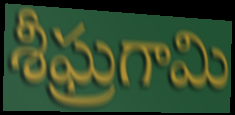
శీఘ్రగామి